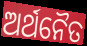
ଅର୍ଥନୈତ